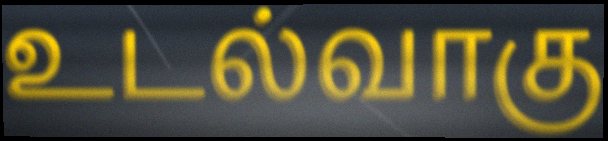
உடல்வாகு